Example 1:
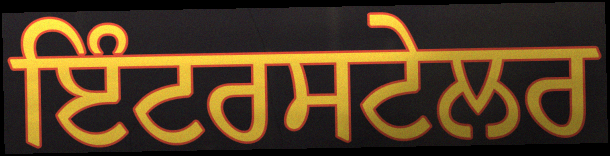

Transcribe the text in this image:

ਇੰਟਰਸਟੇਲਰ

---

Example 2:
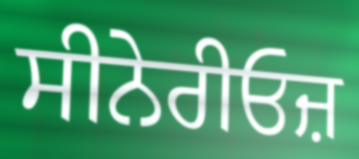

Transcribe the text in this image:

ਸੀਨੇਰੀਓਜ਼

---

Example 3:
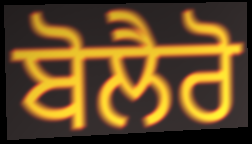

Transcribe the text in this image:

ਬੋਲੈਰੋ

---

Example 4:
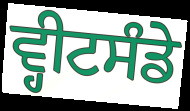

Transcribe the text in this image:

ਵ੍ਹੀਟਸੰਡੇ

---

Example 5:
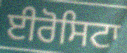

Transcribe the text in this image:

ਈਰੋਸਿਟਾ